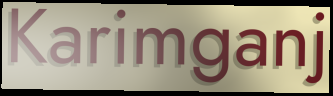
Karimganj